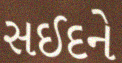
સઈદને